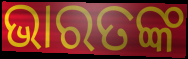
ଭାରତଙ୍କ